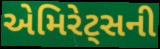
એમિરેટ્સની